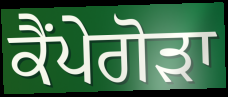
ਕੈਂਪੇਗੋੜਾ